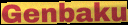
Genbaku